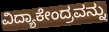
ವಿದ್ಯಾಕೇಂದ್ರವನ್ನು